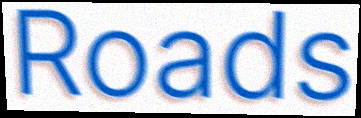
Roads